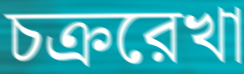
চক্ররেখা